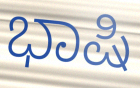
ಭಾಷಿ